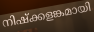
നിഷ്ക്കളങ്കമായി